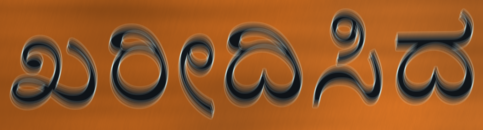
ಖರೀದಿಸಿದ